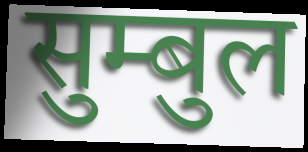
सुम्बुल